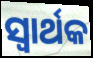
ସ୍ବାର୍ଥକ